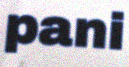
pani